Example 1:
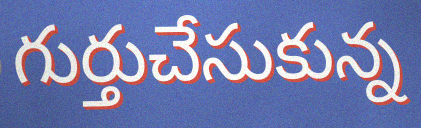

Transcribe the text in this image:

గుర్తుచేసుకున్న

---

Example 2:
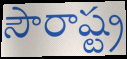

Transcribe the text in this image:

సౌరాష్ట్ర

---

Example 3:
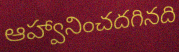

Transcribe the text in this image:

ఆహ్వానించదగినది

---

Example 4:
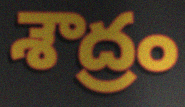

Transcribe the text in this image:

శౌద్రం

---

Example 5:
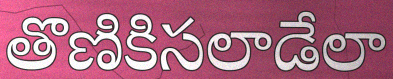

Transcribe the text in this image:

తొణికిసలాడేలా